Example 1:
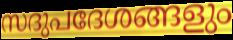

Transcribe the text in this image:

സദുപദേശങ്ങളും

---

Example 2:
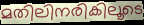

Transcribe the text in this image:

മതിലിനരികിലൂടെ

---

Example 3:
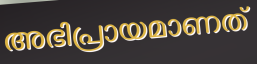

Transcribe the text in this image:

അഭിപ്രായമാണത്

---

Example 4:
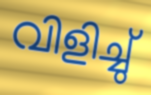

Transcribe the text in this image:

വിളിച്ചു്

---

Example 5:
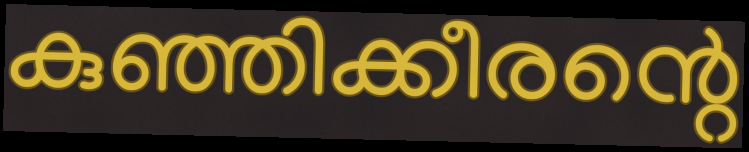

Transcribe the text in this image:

കുഞ്ഞിക്കീരന്റെ